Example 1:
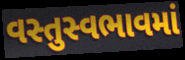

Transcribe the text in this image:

વસ્તુસ્વભાવમાં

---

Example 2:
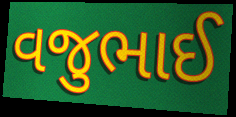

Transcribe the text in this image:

વજુભાઈ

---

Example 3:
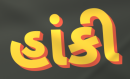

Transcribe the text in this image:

હાંકી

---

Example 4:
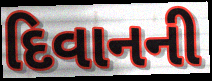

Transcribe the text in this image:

દિવાનની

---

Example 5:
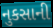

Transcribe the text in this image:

નુકસાની